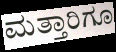
ಮತ್ತಾರಿಗೂ